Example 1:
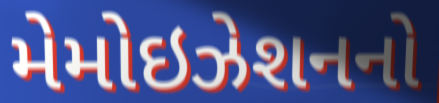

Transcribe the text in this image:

મેમોઇઝેશનનો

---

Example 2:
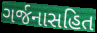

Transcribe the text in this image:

ગર્જનાસહિત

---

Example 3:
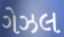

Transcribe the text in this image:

ગેઝલ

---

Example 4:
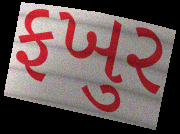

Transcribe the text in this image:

ફખુર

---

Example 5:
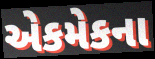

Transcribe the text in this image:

એકમેકના